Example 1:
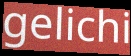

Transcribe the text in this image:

gelichi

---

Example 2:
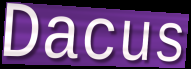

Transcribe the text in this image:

Dacus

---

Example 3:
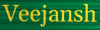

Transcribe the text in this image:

Veejansh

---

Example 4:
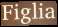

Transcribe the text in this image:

Figlia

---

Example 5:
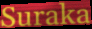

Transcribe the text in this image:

Suraka